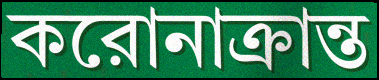
করোনাক্রান্ত